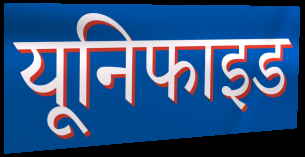
यूनिफाइड